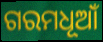
ଗରମଧୂଆଁ